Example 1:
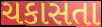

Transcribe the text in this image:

ચકાસતા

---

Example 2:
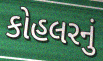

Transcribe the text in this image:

કોહલરનું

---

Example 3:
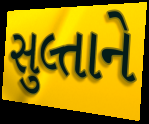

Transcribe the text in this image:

સુલ્તાને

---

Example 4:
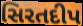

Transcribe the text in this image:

સિરતદીપ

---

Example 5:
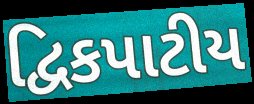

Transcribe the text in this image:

દ્વિકપાટીય